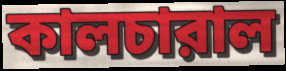
কালচারাল